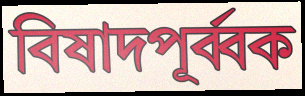
বিষাদপূর্ব্বক